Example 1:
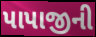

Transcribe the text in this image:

પાપાજીની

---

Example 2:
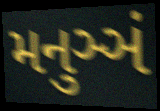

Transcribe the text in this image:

મનુઞ્ઞં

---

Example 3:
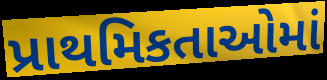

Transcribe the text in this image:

પ્રાથમિકતાઓમાં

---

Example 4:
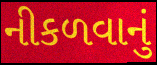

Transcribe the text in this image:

નીકળવાનું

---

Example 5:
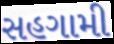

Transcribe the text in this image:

સહગામી